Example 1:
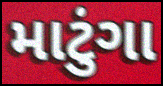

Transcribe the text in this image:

માટુંગા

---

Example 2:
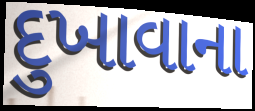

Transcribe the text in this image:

દુખાવાના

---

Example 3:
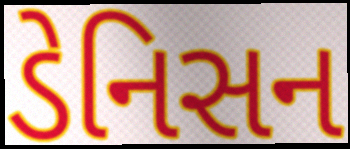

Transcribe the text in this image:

ડેનિસન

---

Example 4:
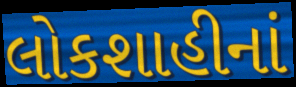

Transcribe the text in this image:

લોકશાહીનાં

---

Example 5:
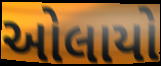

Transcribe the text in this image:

ઓલાયો